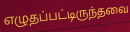
எழுதப்பட்டிருந்தவை